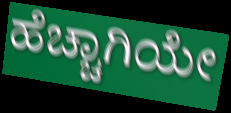
ಹೆಚ್ಚಾಗಿಯೇ